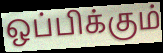
ஒப்பிக்கும்